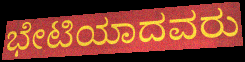
ಭೇಟಿಯಾದವರು